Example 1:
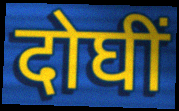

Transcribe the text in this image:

दोघीं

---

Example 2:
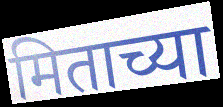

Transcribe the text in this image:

मिताच्या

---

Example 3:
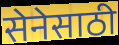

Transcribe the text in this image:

सेनेसाठी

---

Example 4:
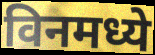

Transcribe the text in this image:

विनमध्ये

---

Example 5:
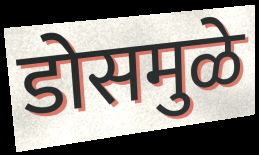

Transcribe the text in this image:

डोसमुळे